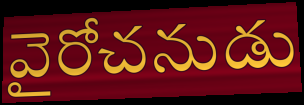
వైరోచనుడు